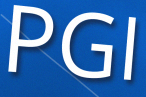
PGI